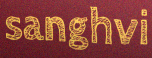
sanghvi